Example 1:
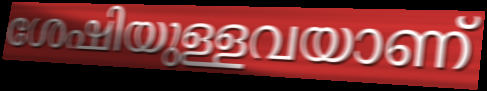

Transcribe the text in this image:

ശേഷിയുള്ളവയാണ്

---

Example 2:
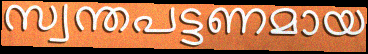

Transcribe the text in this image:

സ്വന്തപട്ടണമായ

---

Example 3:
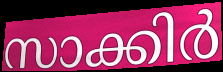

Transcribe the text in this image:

സാക്കിർ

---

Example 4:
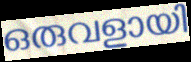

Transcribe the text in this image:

ഒരുവളായി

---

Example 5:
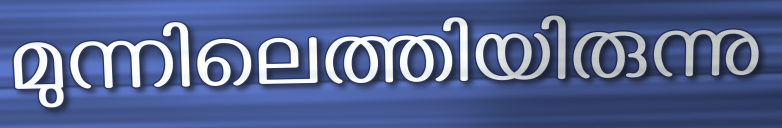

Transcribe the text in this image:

മുന്നിലെത്തിയിരുന്നു